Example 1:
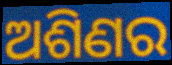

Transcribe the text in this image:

ଅଶିଣର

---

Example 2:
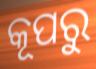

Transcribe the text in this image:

କୂପରୁ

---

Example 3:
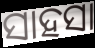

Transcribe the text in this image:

ସାହସା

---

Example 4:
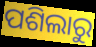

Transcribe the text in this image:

ପଶିଲାରୁ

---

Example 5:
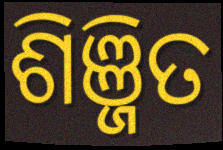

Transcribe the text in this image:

ଶିଞ୍ଜିତ